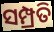
ସମ୍ପ୍ରତି